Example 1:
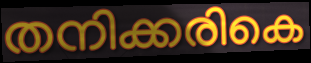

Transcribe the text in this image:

തനിക്കരികെ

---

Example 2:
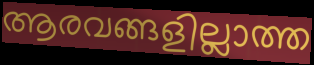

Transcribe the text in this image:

ആരവങ്ങളില്ലാത്ത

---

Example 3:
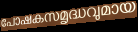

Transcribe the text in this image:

പോഷകസമൃദ്ധവുമായ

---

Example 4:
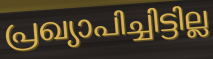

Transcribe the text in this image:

പ്രഖ്യാപിച്ചിട്ടില്ല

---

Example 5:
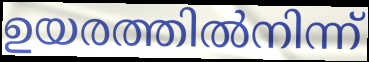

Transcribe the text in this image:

ഉയരത്തിൽനിന്ന്